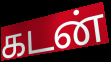
கடன்